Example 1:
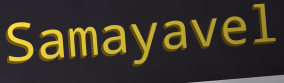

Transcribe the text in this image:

Samayavel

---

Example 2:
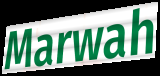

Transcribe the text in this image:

Marwah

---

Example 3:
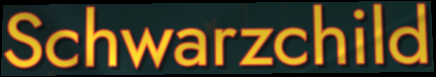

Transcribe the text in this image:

Schwarzchild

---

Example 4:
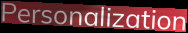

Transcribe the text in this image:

Personalization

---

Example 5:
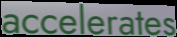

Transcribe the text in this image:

accelerates